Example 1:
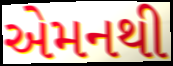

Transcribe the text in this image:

એમનથી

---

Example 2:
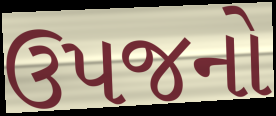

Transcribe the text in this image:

ઉપજનો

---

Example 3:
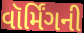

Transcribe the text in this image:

વૉર્મિંગની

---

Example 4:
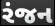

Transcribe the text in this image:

રંજન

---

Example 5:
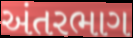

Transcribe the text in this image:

અંતરભાગ